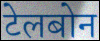
टेलबोन